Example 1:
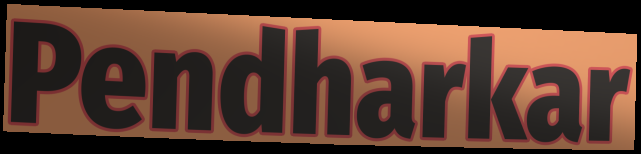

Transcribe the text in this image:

Pendharkar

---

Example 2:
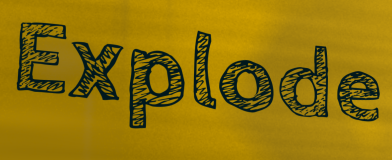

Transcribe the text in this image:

Explode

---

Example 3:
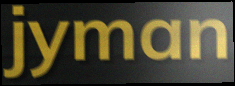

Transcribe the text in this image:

jyman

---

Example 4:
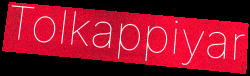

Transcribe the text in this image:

Tolkappiyar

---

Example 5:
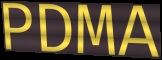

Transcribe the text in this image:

PDMA